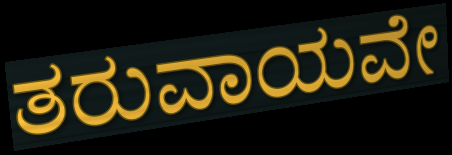
ತರುವಾಯವೇ